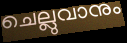
ചെല്ലുവാനും